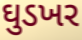
ઘુડખર